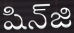
షిన్‌జి